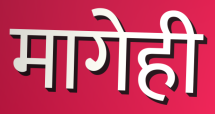
मागेही